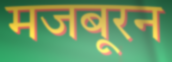
मजबूरन